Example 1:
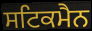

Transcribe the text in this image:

ਸਟਿਕਮੈਨ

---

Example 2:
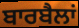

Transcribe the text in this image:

ਬਾਰਬੈਲਾਂ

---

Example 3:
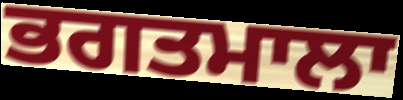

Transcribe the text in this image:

ਭਗਤਮਾਲਾ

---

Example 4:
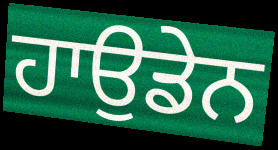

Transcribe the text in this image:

ਹਾਉਡੇਨ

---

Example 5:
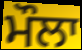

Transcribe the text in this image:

ਮੌਲਾ